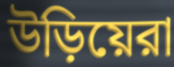
উড়িয়েরা